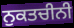
ਨੁਕਤਚੀਨੀ